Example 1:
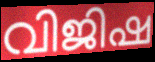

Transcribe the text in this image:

വിജിഷ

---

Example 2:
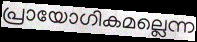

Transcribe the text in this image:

പ്രായോഗികമല്ലെന്ന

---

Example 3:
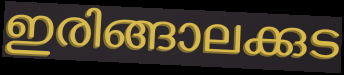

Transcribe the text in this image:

ഇരിങ്ങാലക്കുട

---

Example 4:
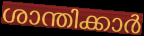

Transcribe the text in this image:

ശാന്തിക്കാർ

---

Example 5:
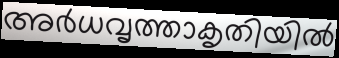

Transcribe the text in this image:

അർധവൃത്താകൃതിയിൽ